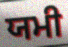
ਯਮੀ